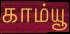
காம்யூ